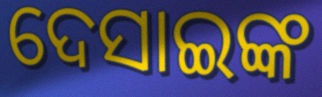
ଦେସାଇଙ୍କ